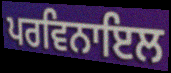
ਪਰਵਿਨਾਇਲ